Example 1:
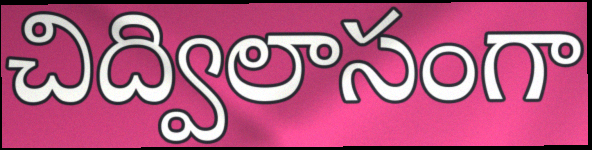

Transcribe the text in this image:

చిద్విలాసంగా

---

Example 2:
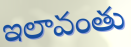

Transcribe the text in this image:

ఇలావంతు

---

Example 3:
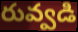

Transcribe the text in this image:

రువ్వడి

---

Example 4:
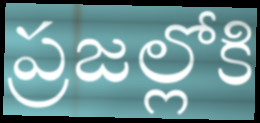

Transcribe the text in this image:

ప్రజల్లోకి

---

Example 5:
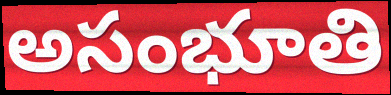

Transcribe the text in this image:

అసంభూతి